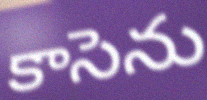
కాసెను